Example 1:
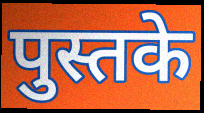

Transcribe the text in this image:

पुस्तके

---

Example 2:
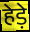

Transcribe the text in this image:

हेड़े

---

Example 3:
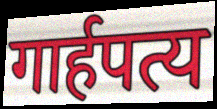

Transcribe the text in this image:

गार्हपत्य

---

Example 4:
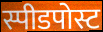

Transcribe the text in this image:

स्पीडपोस्ट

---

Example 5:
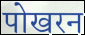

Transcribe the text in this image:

पोखरन